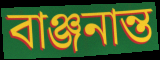
বাঞ্জনান্ত